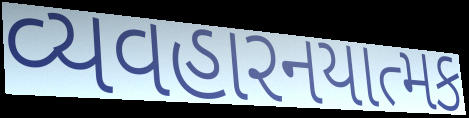
વ્યવહારનયાત્મક